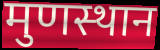
मुणस्थान